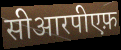
सीआरपीएफ़